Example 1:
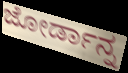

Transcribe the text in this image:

ಜೋರ್ಡಾನ್ನ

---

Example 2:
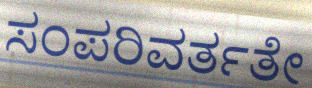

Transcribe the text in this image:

ಸಂಪರಿವರ್ತತೇ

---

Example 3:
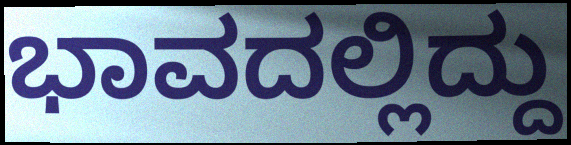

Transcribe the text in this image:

ಭಾವದಲ್ಲಿದ್ದು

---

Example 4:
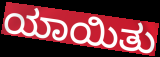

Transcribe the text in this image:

ಯಾಯಿತು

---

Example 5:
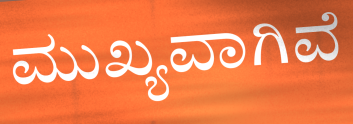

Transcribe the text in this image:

ಮುಖ್ಯವಾಗಿವೆ